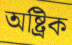
অষ্ট্রিক